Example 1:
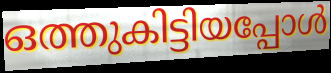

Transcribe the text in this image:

ഒത്തുകിട്ടിയപ്പോൾ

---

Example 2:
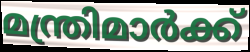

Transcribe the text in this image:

മന്ത്രിമാർക്ക്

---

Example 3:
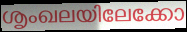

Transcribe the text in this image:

ശൃംഖലയിലേക്കോ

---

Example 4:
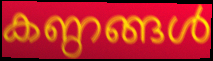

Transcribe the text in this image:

കണ്ഠങ്ങൾ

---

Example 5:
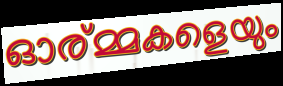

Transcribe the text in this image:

ഓര്മ്മകളെയും